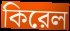
কিরেল